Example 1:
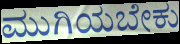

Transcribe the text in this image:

ಮುಗಿಯಬೇಕು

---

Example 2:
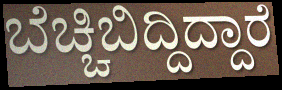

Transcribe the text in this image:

ಬೆಚ್ಚಿಬಿದ್ದಿದ್ದಾರೆ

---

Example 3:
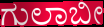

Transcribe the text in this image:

ಗುಲಾಬೀ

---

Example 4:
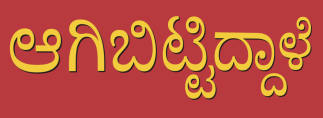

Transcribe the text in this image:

ಆಗಿಬಿಟ್ಟಿದ್ದಾಳೆ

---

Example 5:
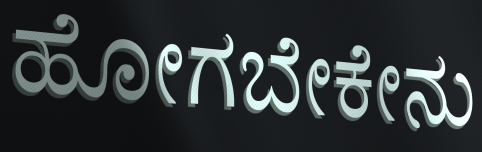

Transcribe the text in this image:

ಹೋಗಬೇಕೇನು